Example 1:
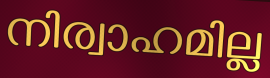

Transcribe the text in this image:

നിര്വാഹമില്ല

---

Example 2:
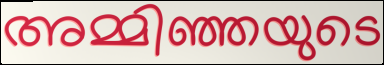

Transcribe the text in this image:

അമ്മിഞ്ഞയുടെ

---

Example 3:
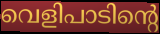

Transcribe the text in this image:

വെളിപാടിന്റെ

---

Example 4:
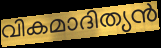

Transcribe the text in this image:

വികമാദിത്യൻ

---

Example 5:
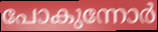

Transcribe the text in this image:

പോകുന്നോർ